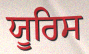
ਯੂਰਿਸ